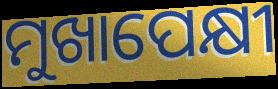
ମୁଖାପେକ୍ଷୀ